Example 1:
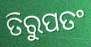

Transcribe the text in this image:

ତିରୁପତଂ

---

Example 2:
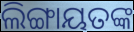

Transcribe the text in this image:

ଲିଙ୍ଗାୟତଙ୍କ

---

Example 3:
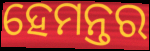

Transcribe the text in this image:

ହେମନ୍ତର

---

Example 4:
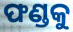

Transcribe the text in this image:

ଫଣ୍ଡକୁ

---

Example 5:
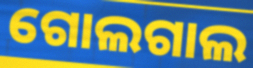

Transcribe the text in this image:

ଗୋଲଗାଲ